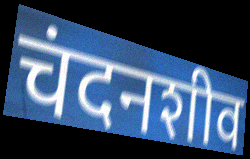
चंदनशीव